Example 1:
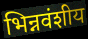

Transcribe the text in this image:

भिन्नवंशीय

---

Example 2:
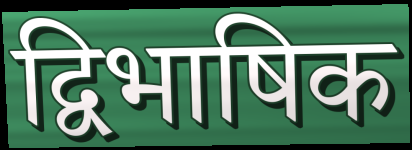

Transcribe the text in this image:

द्विभाषिक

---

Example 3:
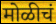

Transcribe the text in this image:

मोळीचं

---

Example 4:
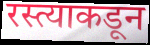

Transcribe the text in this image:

रस्त्याकडून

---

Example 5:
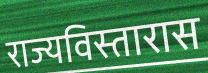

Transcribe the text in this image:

राज्यविस्तारास